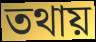
তথায়